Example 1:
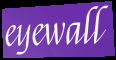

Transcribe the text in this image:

eyewall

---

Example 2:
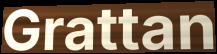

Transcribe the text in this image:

Grattan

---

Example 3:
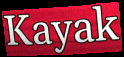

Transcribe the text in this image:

Kayak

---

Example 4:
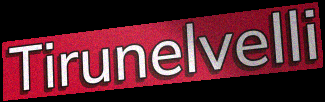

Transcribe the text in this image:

Tirunelvelli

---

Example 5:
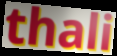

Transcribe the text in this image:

thali